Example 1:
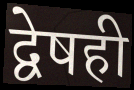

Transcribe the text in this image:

द्वेषही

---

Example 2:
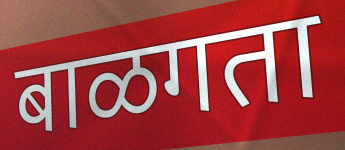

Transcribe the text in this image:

बाळगता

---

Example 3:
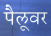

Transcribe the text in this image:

पैलूवर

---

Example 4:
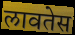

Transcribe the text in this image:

लावतेस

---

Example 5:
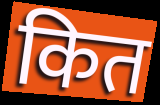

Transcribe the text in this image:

कित